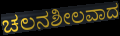
ಚಲನಶೀಲವಾದ